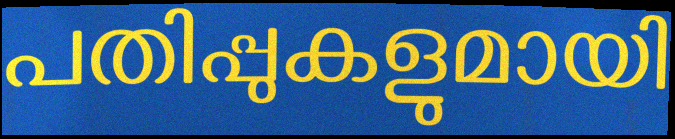
പതിപ്പുകളുമായി